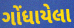
ગોંધાયેલા